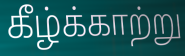
கீழ்க்காற்று